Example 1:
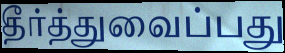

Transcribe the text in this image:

தீர்த்துவைப்பது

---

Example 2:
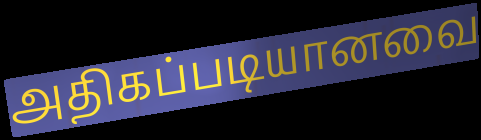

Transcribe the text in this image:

அதிகப்படியானவை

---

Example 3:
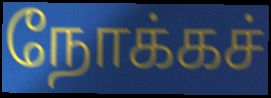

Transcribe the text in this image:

நோக்கச்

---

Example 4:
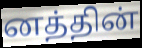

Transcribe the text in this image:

னத்தின்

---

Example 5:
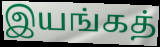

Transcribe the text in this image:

இயங்கத்